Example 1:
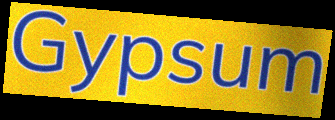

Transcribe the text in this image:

Gypsum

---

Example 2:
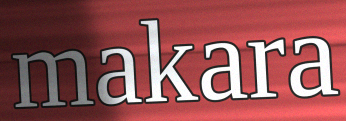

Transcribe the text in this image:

makara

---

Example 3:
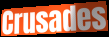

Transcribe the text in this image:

Crusades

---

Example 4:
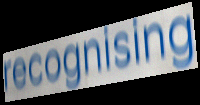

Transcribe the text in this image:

recognising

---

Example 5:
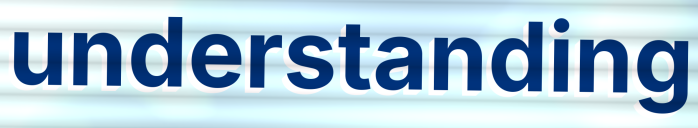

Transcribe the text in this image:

understanding